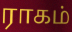
ராகம்